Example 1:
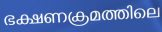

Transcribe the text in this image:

ഭക്ഷണക്രമത്തിലെ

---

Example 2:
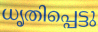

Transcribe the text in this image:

ധൃതിപ്പെട്ടു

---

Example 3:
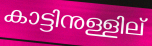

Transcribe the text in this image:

കാട്ടിനുള്ളില്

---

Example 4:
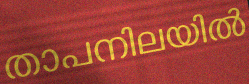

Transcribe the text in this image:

താപനിലയിൽ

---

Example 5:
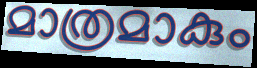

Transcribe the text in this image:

മാത്രമാകും